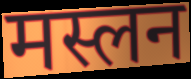
मस्लन